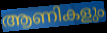
ആണികളും